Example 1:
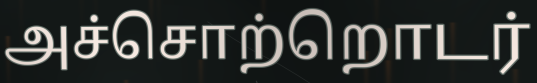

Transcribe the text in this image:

அச்சொற்றொடர்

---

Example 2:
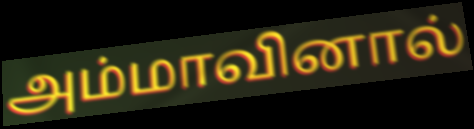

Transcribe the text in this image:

அம்மாவினால்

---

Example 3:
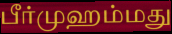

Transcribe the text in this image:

பீர்முஹம்மது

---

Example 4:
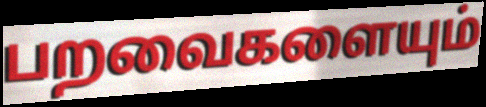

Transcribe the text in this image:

பறவைகளையும்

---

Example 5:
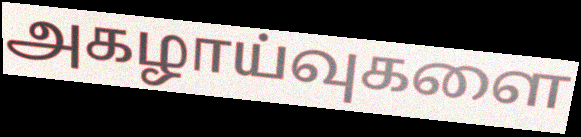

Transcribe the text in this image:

அகழாய்வுகளை